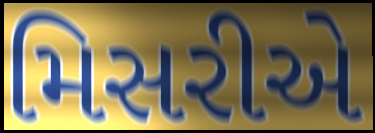
મિસરીએ